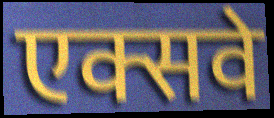
एक्सवे